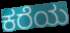
ಕರೆಯ